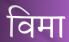
विमा